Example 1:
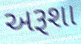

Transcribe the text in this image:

અરૂશા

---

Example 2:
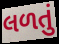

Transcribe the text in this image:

લળતું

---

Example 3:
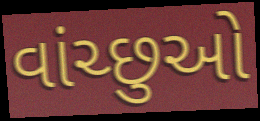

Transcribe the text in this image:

વાંચ્છુઓ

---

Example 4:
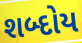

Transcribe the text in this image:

શબ્દોય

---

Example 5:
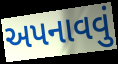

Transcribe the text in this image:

અપનાવવું